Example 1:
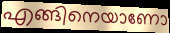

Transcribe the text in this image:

എങ്ങിനെയാണോ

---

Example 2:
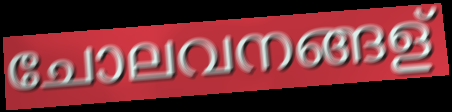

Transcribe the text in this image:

ചോലവനങ്ങള്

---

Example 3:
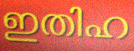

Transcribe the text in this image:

ഇതിഹ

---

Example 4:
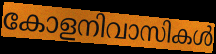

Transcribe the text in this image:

കോളനിവാസികൾ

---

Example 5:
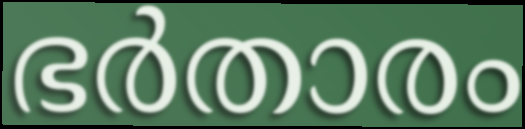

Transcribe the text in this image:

ഭർതാരം